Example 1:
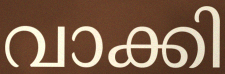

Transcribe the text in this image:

വാക്കി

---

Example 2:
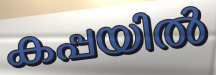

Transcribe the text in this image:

കപ്പയിൽ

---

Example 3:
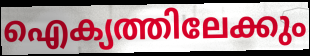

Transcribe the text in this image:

ഐക്യത്തിലേക്കും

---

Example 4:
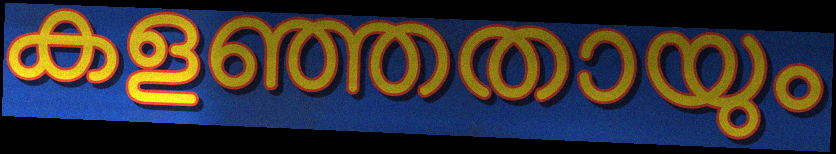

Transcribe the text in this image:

കളഞ്ഞതായും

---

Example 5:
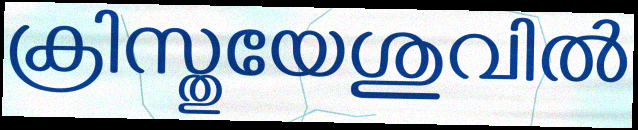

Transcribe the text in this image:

ക്രിസ്തുയേശുവിൽ